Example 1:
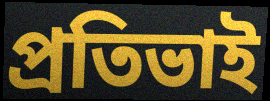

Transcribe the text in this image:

প্রতিভাই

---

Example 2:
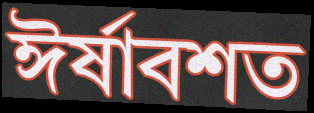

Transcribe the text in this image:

ঈর্ষাবশত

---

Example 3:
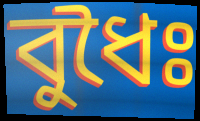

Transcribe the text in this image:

বুধৈঃ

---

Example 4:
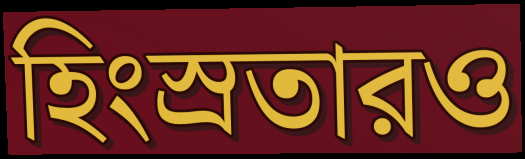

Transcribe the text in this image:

হিংস্রতারও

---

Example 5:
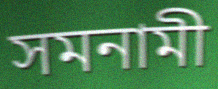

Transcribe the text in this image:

সমনামী